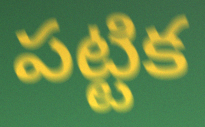
పట్టిక